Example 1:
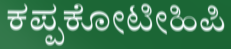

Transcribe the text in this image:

ಕಪ್ಪಕೋಟೀಹಿಪಿ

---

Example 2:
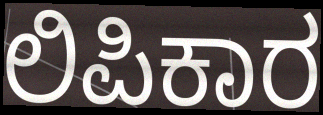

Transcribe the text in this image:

ಲಿಪಿಕಾರ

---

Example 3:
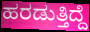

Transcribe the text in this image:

ಹರಡುತ್ತಿದ್ದೆ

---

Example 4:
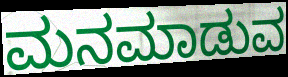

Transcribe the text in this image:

ಮನಮಾಡುವ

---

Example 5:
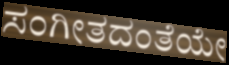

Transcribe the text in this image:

ಸಂಗೀತದಂತೆಯೇ